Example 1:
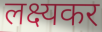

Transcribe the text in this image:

लक्ष्यकर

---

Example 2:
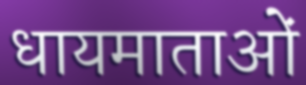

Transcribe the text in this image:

धायमाताओं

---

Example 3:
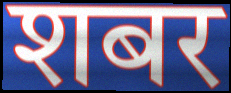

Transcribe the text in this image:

शबर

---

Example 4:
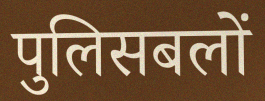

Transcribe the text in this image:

पुलिसबलों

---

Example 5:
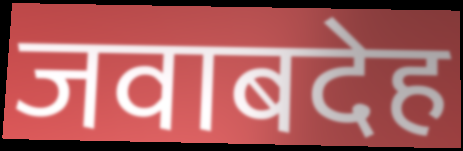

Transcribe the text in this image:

जवाबदेह